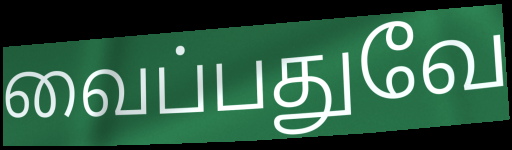
வைப்பதுவே